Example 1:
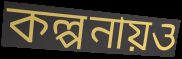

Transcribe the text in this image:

কল্পনায়ও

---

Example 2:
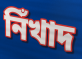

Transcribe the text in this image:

নিঁখাদ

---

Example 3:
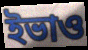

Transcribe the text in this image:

ইভাও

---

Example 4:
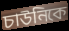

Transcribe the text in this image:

চাউনিকে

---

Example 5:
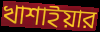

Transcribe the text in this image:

খাশাইয়ার